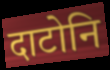
दाटोनि